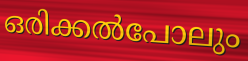
ഒരിക്കൽപോലും